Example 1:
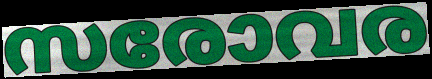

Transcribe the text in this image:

സരോവര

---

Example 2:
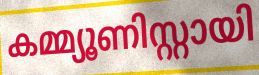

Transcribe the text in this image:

കമ്മ്യൂണിസ്റ്റായി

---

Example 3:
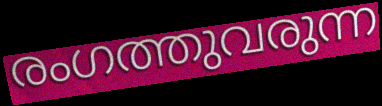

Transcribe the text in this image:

രംഗത്തുവരുന്ന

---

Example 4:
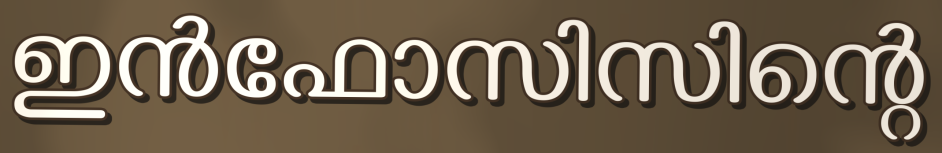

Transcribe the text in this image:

ഇൻഫോസിസിന്റെ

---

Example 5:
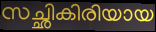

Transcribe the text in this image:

സച്ഛികിരിയായ